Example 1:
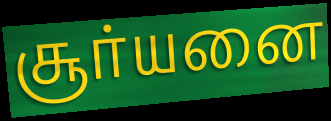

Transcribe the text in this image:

சூர்யனை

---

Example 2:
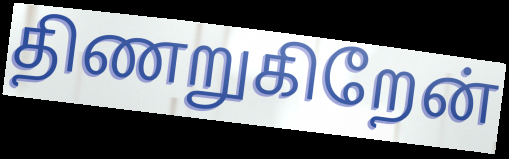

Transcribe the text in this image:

திணறுகிறேன்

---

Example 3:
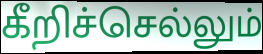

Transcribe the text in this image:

கீறிச்செல்லும்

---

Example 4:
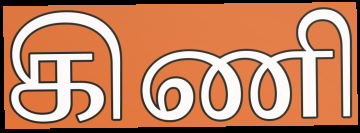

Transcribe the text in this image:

கிணி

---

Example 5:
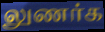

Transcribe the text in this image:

லுணர்க